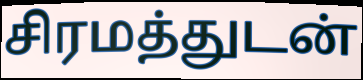
சிரமத்துடன்